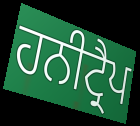
ਹਨੀਟ੍ਰੈਪ